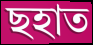
ছহাত